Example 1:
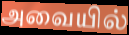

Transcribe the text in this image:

அவையில்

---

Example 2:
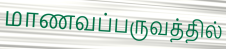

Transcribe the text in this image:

மாணவப்பருவத்தில்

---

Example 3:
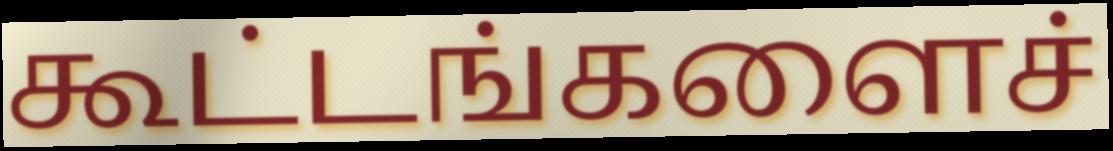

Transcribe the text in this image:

கூட்டங்களைச்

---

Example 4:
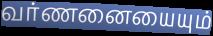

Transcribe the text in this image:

வர்ணனையையும்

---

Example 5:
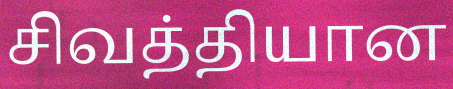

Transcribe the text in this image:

சிவத்தியான